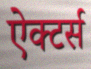
ऐक्टर्स